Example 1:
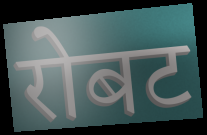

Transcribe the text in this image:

रोबट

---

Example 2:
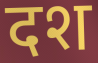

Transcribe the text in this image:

दश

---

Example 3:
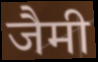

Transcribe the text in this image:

जैमी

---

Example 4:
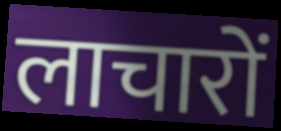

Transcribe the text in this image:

लाचारों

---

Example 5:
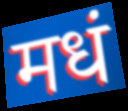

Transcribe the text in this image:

मधं